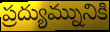
ప్రద్యుమ్నునికి